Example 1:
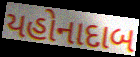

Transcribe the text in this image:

યહોનાદાબ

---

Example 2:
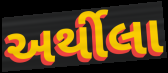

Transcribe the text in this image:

અર્થીલા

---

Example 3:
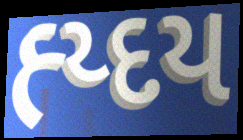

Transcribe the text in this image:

હ્ય્દય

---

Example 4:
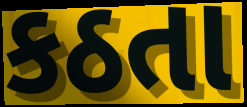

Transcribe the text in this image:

કઠતા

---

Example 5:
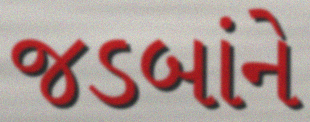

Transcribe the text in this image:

જડબાંને